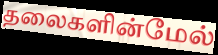
தலைகளின்மேல்